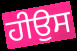
ਹੀਉਸ